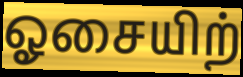
ஓசையிற்